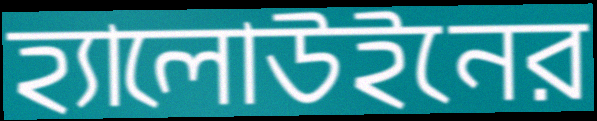
হ্যালোউইনের